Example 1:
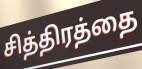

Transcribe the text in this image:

சித்திரத்தை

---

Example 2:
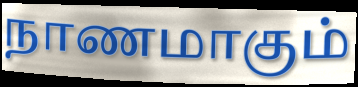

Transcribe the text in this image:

நாணமாகும்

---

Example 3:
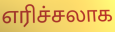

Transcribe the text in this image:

எரிச்சலாக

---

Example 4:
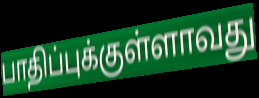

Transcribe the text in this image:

பாதிப்புக்குள்ளாவது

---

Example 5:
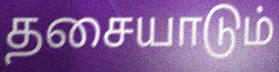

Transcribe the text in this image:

தசையாடும்